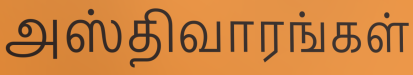
அஸ்திவாரங்கள்